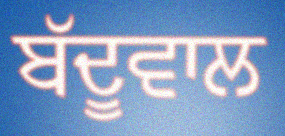
ਬੱਦੂਵਾਲ